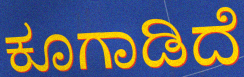
ಕೂಗಾಡಿದೆ